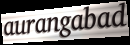
aurangabad